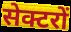
सेक्टरों